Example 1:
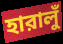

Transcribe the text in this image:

হারালুঁ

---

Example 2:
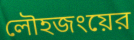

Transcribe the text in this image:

লৌহজংয়ের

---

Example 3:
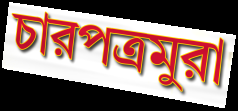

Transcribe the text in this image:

চারপত্রমুরা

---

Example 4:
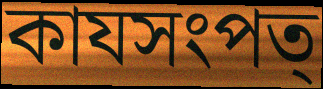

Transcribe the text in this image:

কাযসংপত্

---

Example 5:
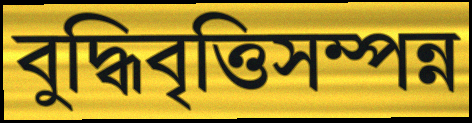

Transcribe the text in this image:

বুদ্ধিবৃত্তিসম্পন্ন